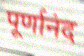
पूर्णानंद